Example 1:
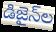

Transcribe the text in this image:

డిజైన్‌ల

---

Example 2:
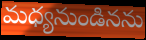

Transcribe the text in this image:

మధ్యనుండినను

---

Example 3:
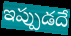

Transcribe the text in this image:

ఇప్పుడదే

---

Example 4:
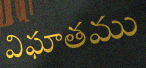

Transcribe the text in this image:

విఘాతము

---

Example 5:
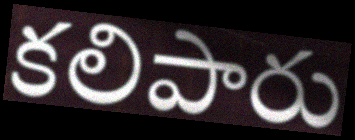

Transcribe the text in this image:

కలిపారు